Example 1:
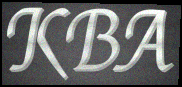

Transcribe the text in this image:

KBA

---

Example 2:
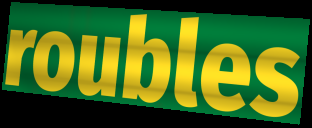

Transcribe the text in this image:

roubles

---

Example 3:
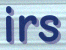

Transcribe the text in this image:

irs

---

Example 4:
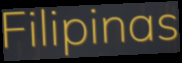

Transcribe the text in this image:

Filipinas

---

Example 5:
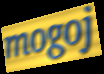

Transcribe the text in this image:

mogoj